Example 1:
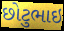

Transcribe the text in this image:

છોટુભાઇ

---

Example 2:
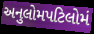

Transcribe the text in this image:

અનુલોમપટિલોમં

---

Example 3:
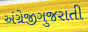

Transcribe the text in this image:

અંગ્રેજીગુજરાતી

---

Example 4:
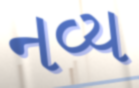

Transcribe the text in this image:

નવ્ય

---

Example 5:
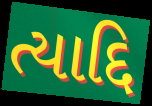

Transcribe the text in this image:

ત્યાદ્દિ